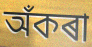
অঁকৰা